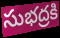
సుభద్రకి